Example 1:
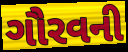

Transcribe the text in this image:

ગૌરવની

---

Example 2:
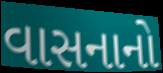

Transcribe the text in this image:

વાસનાનો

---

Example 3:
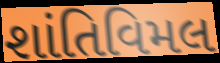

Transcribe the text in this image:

શાંતિવિમલ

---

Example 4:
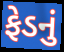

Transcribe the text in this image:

ફેડનું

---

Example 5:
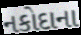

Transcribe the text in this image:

નકોદાના